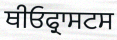
ਥੀਓਫ੍ਰਾਸਟਸ